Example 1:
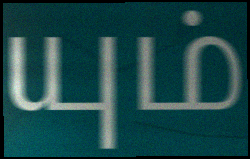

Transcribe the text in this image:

யும்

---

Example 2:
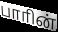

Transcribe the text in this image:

பாரின்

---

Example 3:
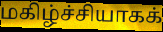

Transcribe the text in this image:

மகிழ்ச்சியாகக்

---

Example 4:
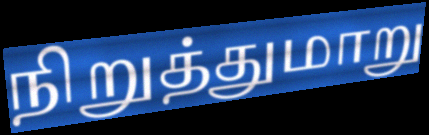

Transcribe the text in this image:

நிறுத்துமாறு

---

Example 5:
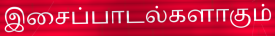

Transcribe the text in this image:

இசைப்பாடல்களாகும்